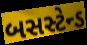
બસસ્ટેન્ડ